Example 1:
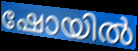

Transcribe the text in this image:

ഷോയിൽ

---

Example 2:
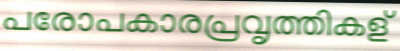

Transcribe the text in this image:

പരോപകാരപ്രവൃത്തികള്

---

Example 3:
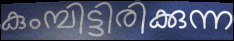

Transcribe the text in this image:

കുംമ്പിട്ടിരിക്കുന്ന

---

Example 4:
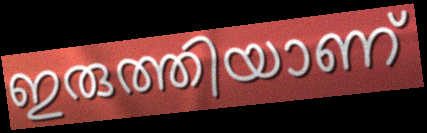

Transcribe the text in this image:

ഇരുത്തിയാണ്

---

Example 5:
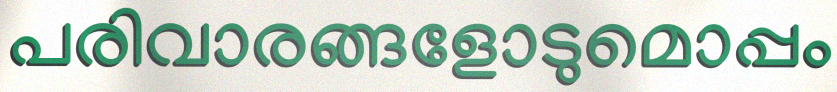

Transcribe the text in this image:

പരിവാരങ്ങളോടുമൊപ്പം